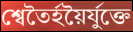
শ্বেতৈর্হয়ৈর্যুক্তে